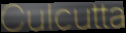
Culcutta